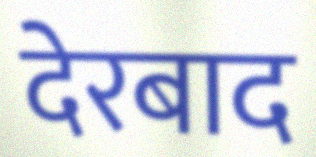
देरबाद